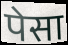
पेसा